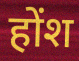
होंश